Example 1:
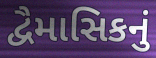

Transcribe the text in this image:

દ્વૈમાસિકનું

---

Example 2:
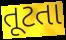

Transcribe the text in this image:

તૂટતા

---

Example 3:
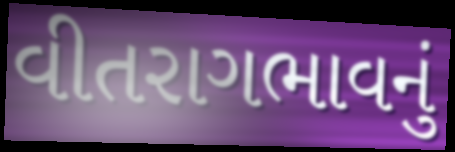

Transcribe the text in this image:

વીતરાગભાવનું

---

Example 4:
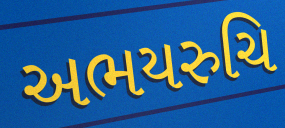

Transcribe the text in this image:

અભયરુચિ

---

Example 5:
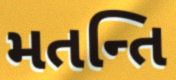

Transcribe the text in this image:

મતન્તિ